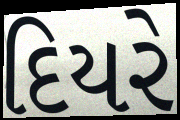
દિયરે